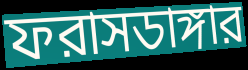
ফরাসডাঙ্গার